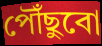
পৌঁছুবো